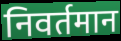
निवर्तमान